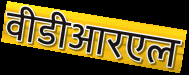
वीडीआरएल